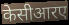
केसीआरए